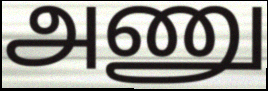
அணு